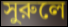
সুরুলে